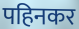
पहिनकर